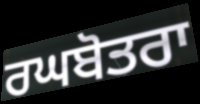
ਰਘਬੋਤਰਾ